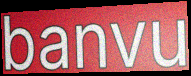
banvu